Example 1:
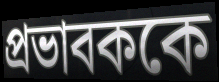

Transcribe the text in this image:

প্রভাবককে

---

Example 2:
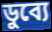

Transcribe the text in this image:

ডুব্যে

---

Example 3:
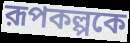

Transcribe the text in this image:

রূপকল্পকে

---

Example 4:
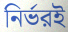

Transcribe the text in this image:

নির্ভরই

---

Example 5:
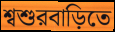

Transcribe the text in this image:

শ্বশুরবাড়িতে